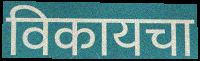
विकायचा